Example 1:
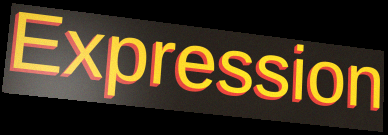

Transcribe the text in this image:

Expression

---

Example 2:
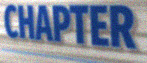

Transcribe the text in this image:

CHAPTER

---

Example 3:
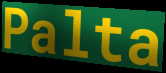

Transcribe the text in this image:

Palta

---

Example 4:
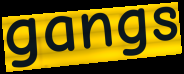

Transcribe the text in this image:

gangs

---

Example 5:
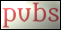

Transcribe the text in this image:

pubs